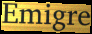
Emigre